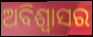
ଅବିଶ୍ବାସର